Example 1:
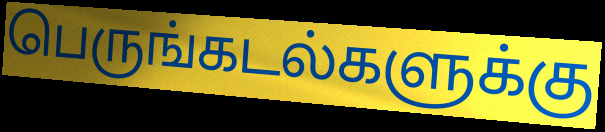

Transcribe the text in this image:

பெருங்கடல்களுக்கு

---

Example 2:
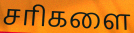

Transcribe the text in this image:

சரிகளை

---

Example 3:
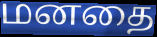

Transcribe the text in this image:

மனதை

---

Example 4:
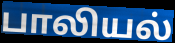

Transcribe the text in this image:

பாலியல்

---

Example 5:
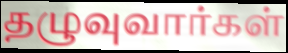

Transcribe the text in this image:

தழுவுவார்கள்